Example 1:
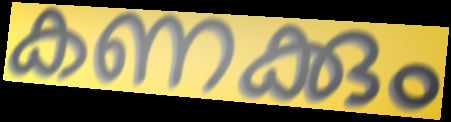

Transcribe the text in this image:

കണക്കും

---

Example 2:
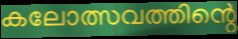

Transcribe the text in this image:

കലോത്സവത്തിന്റെ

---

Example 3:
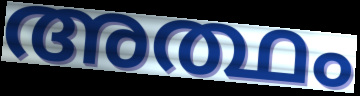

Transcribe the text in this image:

അത്ഥം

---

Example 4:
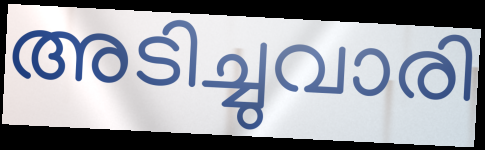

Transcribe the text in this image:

അടിച്ചുവാരി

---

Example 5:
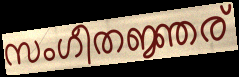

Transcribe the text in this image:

സംഗീതജ്ഞര്